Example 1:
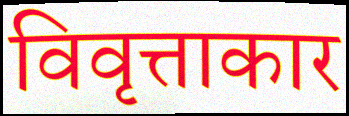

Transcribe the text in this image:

विवृत्ताकार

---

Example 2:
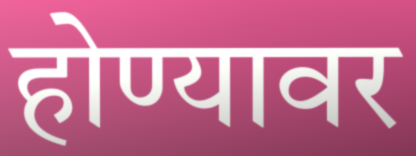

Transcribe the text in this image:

होण्यावर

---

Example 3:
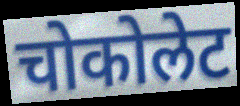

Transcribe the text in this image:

चोकोलेट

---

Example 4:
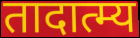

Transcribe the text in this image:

तादात्म्य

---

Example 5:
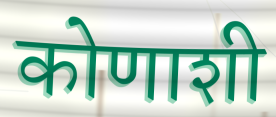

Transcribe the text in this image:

कोणाशी